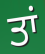
ਤਾਂ